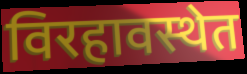
विरहावस्थेत